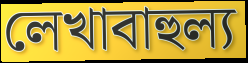
লেখাবাহুল্য